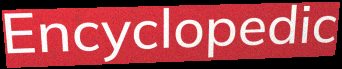
Encyclopedic